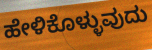
ಹೇಳಿಕೊಳ್ಳುವುದು